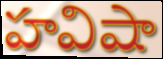
హవిషా